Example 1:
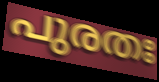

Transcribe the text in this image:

പുരതഃ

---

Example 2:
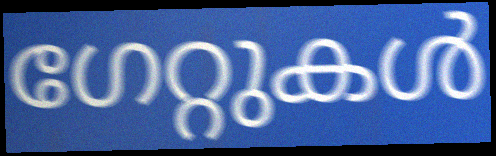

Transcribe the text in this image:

ഗേറ്റുകൾ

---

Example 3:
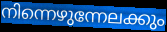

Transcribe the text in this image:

നിന്നെഴുന്നേലക്കും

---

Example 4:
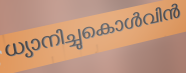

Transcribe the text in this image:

ധ്യാനിച്ചുകൊൾവിൻ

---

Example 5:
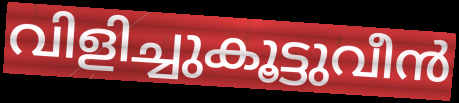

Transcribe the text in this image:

വിളിച്ചുകൂട്ടുവീൻ